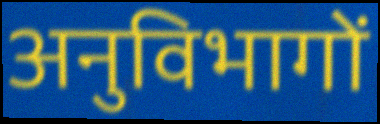
अनुविभागों